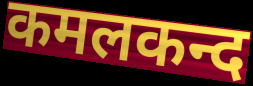
कमलकन्द